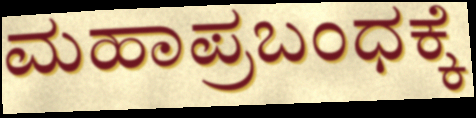
ಮಹಾಪ್ರಬಂಧಕ್ಕೆ